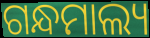
ଗନ୍ଧମାଲ୍ୟ